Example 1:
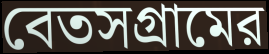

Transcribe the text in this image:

বেতসগ্রামের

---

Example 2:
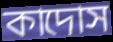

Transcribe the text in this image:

কাদোস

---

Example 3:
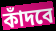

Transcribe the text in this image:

কাঁদবে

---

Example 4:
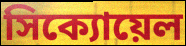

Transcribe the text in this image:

সিক্যোয়েল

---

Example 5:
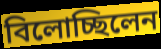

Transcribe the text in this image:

বিলোচ্ছিলেন